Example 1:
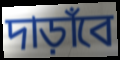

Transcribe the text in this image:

দাড়াঁবে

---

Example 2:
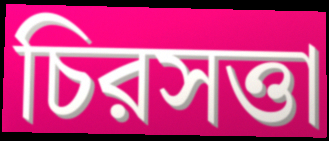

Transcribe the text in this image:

চিরসত্তা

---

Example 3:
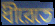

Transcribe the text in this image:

ধীরেতে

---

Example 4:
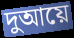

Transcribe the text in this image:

দুআয়ে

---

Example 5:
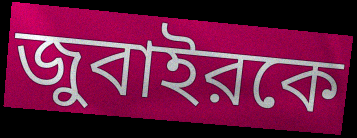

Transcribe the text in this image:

জুবাইরকে